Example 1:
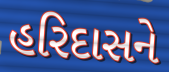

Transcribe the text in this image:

હરિદાસને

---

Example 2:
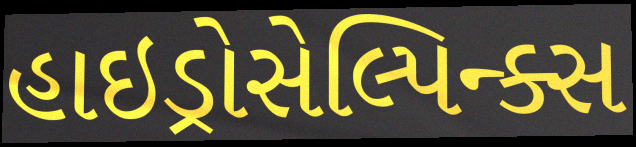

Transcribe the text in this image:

હાઇડ્રોસેલ્પિન્ક્સ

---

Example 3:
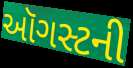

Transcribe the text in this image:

ઑગસ્ટની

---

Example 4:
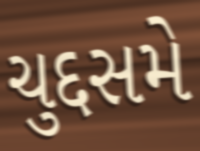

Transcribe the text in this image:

ચુદ્દસમે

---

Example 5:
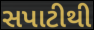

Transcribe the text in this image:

સપાટીથી